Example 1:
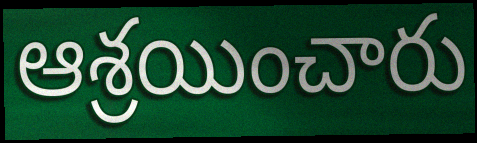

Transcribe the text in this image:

ఆశ్రయించారు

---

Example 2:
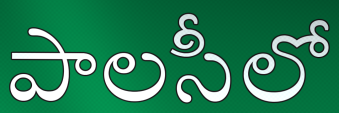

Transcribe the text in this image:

పాలసీలో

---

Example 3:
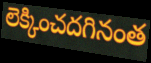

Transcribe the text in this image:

లెక్కించదగినంత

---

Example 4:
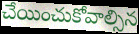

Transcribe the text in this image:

చేయించుకోవాల్సిన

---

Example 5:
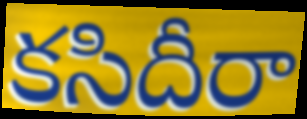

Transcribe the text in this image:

కసిదీరా